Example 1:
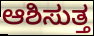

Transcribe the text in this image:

ಆಶಿಸುತ್ತ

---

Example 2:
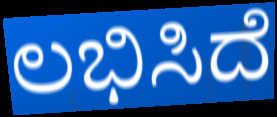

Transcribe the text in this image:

ಲಭಿಸಿದೆ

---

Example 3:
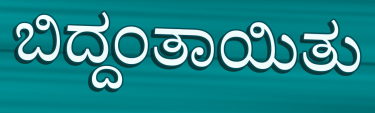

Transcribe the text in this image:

ಬಿದ್ದಂತಾಯಿತು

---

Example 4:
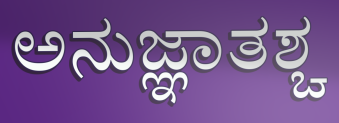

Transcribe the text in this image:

ಅನುಜ್ಞಾತಶ್ಚ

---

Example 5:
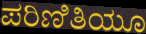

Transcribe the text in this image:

ಪರಿಣಿತಿಯೂ